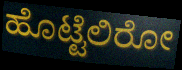
ಹೊಟ್ಟೆಲಿರೋ